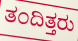
ತಂದಿತ್ತರು